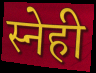
स्नेही